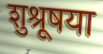
शुश्रूषया